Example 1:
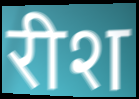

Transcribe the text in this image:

रीश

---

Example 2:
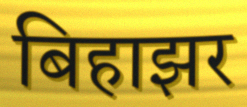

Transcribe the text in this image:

बिहाझर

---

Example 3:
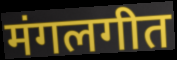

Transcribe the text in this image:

मंगलगीत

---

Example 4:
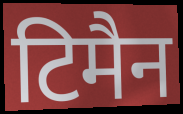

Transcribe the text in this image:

टिमैन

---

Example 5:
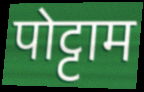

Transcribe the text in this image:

पोट्टाम